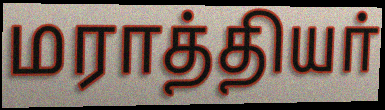
மராத்தியர்